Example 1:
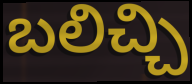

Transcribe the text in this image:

బలిచ్చి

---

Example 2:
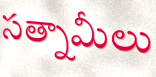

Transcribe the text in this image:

సత్నామీలు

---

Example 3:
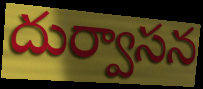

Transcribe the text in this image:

దుర్వాసన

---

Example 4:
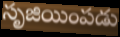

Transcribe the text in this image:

సృజియింపడు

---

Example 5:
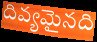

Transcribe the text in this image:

దివ్యమైనది